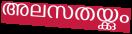
അലസതയ്ക്കും